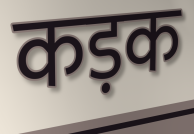
कड़क